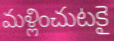
మళ్లించుటకై